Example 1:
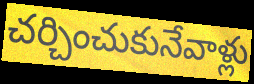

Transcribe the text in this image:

చర్చించుకునేవాళ్లు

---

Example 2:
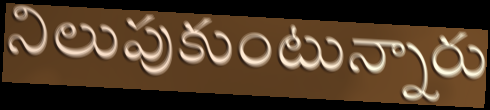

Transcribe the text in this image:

నిలుపుకుంటున్నారు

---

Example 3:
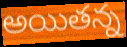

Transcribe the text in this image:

అయితన్న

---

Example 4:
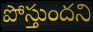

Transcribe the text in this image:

పోస్తుందని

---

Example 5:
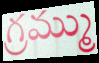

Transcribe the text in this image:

గ్రమ్ము